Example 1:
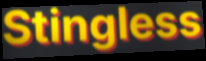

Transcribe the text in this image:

Stingless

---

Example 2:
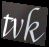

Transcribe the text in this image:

tvk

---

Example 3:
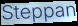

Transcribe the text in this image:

Steppan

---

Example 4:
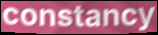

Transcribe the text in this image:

constancy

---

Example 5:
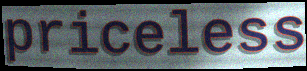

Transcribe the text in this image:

priceless